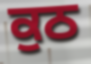
ਕੁਠ